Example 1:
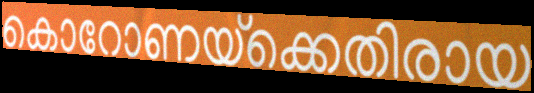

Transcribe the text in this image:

കൊറോണയ്‌ക്കെതിരായ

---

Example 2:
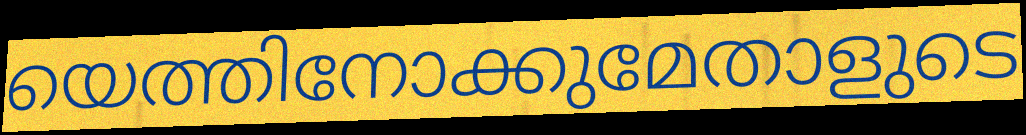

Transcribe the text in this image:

യെത്തിനോക്കുമേതാളുടെ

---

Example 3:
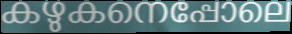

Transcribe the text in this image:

കഴുകനെപ്പോലെ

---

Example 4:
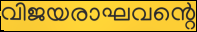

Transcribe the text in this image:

വിജയരാഘവന്റെ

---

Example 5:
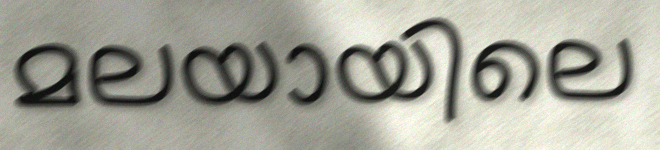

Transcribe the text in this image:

മലയായിലെ